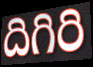
దిగిరి